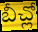
బీచ్లో